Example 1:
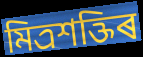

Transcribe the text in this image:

মিত্ৰশক্তিৰ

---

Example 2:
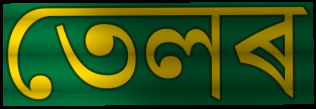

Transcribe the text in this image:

তেলৰ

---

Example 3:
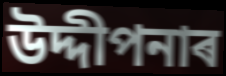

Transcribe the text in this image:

উদ্দীপনাৰ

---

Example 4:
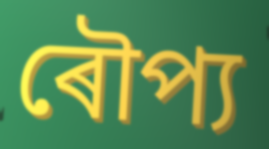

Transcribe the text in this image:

ৰৌপ্য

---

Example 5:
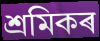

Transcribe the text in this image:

শ্ৰমিকৰ